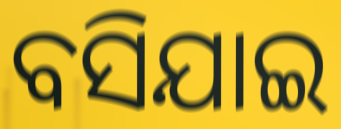
ବସିଯାଇ